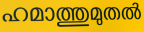
ഹമാത്തുമുതൽ